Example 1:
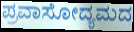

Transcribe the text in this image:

ಪ್ರವಾಸೋದ್ಯಮದ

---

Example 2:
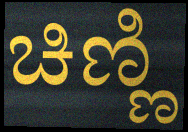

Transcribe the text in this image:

ಚಿಣ್ಣಿ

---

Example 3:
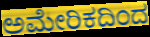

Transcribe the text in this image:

ಅಮೇರಿಕದಿಂದ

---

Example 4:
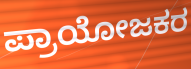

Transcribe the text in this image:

ಪ್ರಾಯೋಜಕರ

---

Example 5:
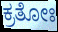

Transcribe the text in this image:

ಕ್ರತೋಃ